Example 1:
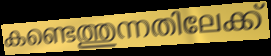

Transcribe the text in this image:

കണ്ടെത്തുന്നതിലേക്ക്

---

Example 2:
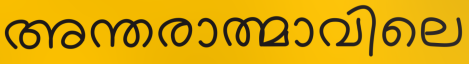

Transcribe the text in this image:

അന്തരാത്മാവിലെ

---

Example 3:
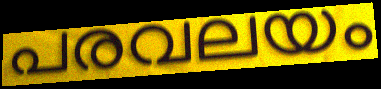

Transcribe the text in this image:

പരവലയം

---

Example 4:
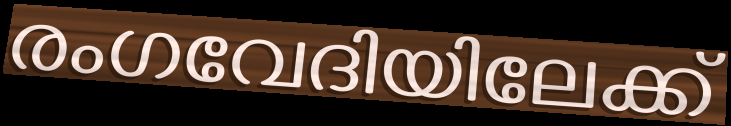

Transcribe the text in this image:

രംഗവേദിയിലേക്ക്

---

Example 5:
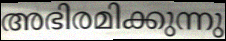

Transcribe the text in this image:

അഭിരമിക്കുന്നു